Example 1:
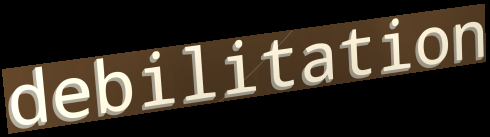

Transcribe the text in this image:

debilitation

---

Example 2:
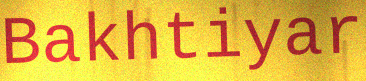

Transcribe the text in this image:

Bakhtiyar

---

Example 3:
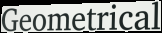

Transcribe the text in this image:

Geometrical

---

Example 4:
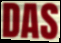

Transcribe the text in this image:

DAS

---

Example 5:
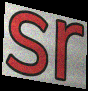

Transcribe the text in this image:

sr